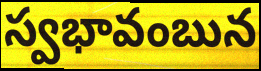
స్వభావంబున